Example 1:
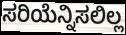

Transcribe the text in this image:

ಸರಿಯೆನ್ನಿಸಲಿಲ್ಲ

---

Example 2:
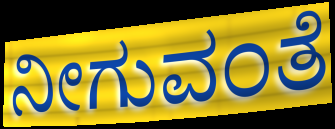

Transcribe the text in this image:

ನೀಗುವಂತೆ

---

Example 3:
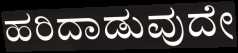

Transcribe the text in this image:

ಹರಿದಾಡುವುದೇ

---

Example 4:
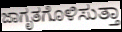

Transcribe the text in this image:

ಜಾಗೃತಗೊಳಿಸುತ್ತಾ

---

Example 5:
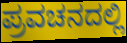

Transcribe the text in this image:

ಪ್ರವಚನದಲ್ಲಿ